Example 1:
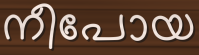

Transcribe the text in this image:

നീപോയ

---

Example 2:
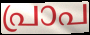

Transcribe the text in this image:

പ്രാപ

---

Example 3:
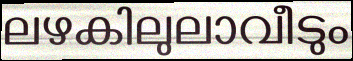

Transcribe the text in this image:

ലഴകിലുലാവീടും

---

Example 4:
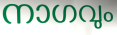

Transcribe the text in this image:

നാഗവും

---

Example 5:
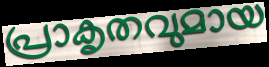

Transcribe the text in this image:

പ്രാകൃതവുമായ